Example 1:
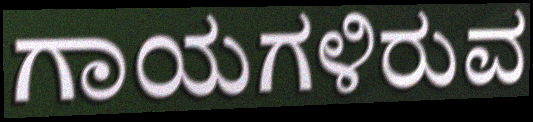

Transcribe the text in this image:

ಗಾಯಗಳಿರುವ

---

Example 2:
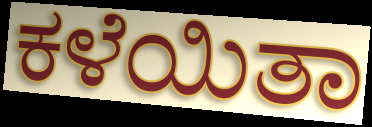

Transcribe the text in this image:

ಕಳೆಯಿತಾ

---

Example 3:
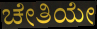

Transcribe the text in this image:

ಚೇತಿಯೇ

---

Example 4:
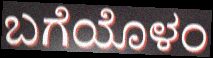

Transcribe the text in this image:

ಬಗೆಯೊಳಂ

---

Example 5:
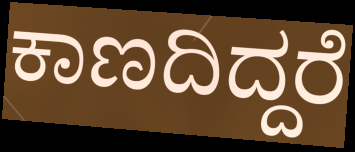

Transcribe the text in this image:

ಕಾಣದಿದ್ದರೆ